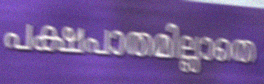
പക്ഷപാതമില്ലാതെ